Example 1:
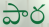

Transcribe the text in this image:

పార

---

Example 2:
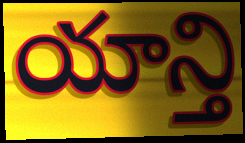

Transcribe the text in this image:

యాన్తి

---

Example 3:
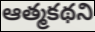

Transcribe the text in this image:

ఆత్మకథని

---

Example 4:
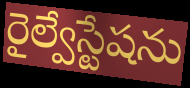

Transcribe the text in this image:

రైల్వేస్టేషను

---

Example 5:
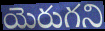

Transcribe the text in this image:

యెరుగని